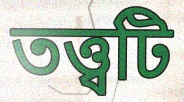
তত্ত্বটি